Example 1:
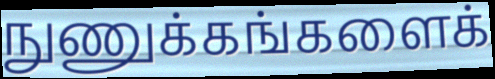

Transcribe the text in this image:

நுணுக்கங்களைக்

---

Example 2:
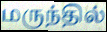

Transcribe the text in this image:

மருந்தில்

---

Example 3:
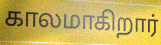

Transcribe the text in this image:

காலமாகிறார்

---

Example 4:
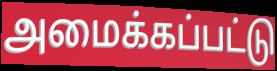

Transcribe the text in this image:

அமைக்கப்பட்டு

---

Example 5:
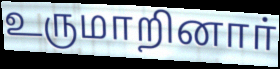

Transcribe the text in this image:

உருமாறினார்